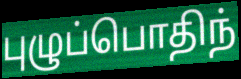
புழுப்பொதிந்